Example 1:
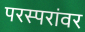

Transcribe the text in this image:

परस्परांवर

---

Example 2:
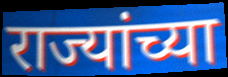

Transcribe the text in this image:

राज्यांच्या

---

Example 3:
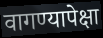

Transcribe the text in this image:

वागण्यापेक्षा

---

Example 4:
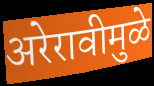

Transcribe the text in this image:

अरेरावीमुळे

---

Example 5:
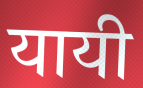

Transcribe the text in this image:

यायी